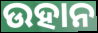
ଉହାନ